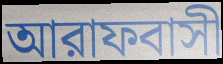
আরাফবাসী